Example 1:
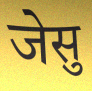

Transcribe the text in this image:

जेसु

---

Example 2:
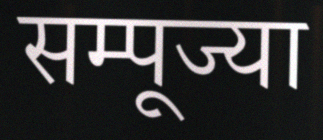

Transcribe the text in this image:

सम्पूज्या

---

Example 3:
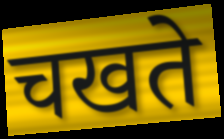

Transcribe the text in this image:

चखते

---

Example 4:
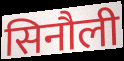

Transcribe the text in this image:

सिनौली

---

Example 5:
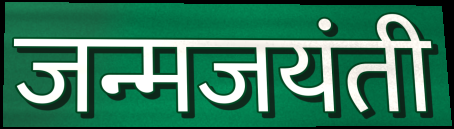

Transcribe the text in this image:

जन्मजयंती